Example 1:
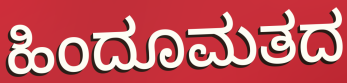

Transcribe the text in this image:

ಹಿಂದೂಮತದ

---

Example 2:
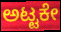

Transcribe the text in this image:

ಅಟ್ಟಕೇ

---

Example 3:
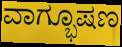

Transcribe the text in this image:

ವಾಗ್ಭೂಷಣ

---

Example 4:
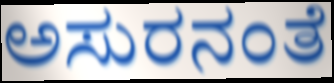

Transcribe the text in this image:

ಅಸುರನಂತೆ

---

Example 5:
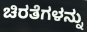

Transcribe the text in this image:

ಚಿರತೆಗಳನ್ನು